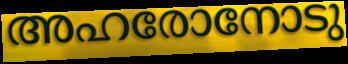
അഹരോനോടു